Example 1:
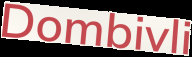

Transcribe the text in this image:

Dombivli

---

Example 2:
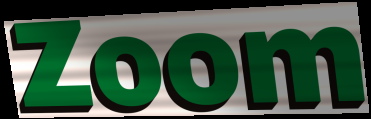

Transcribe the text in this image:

Zoom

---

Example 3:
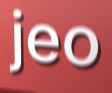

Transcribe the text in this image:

jeo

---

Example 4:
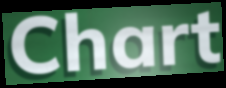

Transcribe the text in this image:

Chart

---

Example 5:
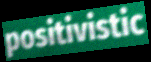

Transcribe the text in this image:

positivistic